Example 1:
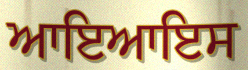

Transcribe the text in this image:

ਆਇਆਇਸ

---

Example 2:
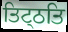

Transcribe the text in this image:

ਤਿਟ੍ਠਤਿ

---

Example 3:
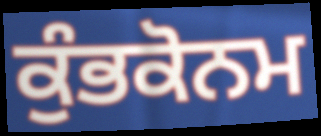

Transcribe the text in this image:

ਕੁੰਭਕੋਨਮ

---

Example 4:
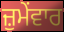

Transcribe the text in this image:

ਜ਼ੁਮੇਂਵਾਰ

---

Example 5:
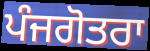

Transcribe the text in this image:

ਪੰਜਗੋਤਰਾ